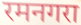
रमनगरा